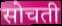
सोचती